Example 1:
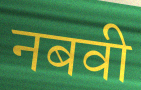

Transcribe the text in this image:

नबवी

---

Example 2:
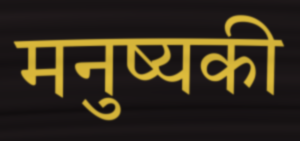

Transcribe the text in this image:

मनुष्यकी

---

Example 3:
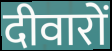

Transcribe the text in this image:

दीवारों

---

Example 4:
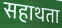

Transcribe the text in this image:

सहाथता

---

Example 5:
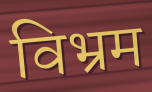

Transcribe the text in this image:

विभ्रम